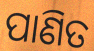
ପାଣିତ